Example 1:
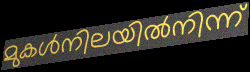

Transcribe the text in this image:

മുകൾനിലയിൽനിന്ന്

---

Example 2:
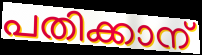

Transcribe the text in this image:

പതിക്കാന്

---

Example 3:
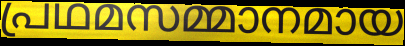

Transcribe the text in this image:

പ്രഥമസമ്മാനമായ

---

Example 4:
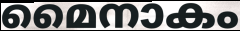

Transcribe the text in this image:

മൈനാകം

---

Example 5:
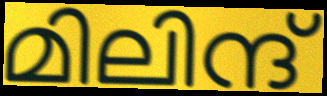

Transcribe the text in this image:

മിലിന്ദ്